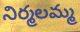
నిర్మలమ్మ